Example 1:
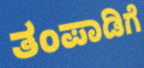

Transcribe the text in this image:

ತಂಪಾಡಿಗೆ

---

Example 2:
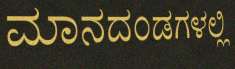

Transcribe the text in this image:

ಮಾನದಂಡಗಳಲ್ಲಿ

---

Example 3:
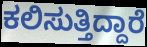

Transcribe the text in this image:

ಕಲಿಸುತ್ತಿದ್ದಾರೆ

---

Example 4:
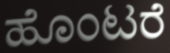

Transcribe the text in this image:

ಹೊಂಟರೆ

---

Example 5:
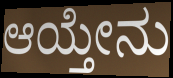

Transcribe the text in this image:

ಆಯ್ತೇನು